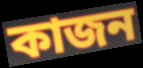
কাজন